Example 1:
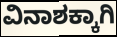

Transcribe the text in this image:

ವಿನಾಶಕ್ಕಾಗಿ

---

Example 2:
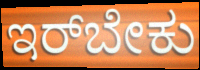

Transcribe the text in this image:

ಇರ್‌ಬೇಕು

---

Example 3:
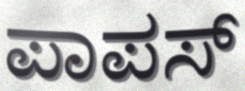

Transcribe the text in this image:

ಪಾಪಸ್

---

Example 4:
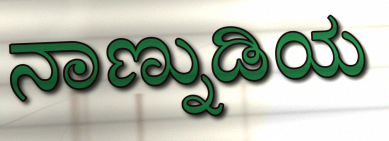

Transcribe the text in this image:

ನಾಣ್ನುಡಿಯ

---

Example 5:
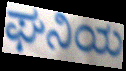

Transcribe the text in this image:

ಘನಿಯ